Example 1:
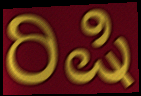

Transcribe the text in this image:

ರಿಷಿ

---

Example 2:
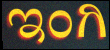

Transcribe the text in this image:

ಇಂಗಿ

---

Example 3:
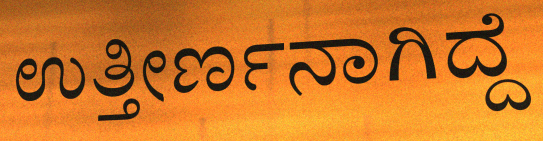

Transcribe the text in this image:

ಉತ್ತೀರ್ಣನಾಗಿದ್ದೆ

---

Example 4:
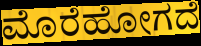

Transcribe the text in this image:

ಮೊರೆಹೋಗದೆ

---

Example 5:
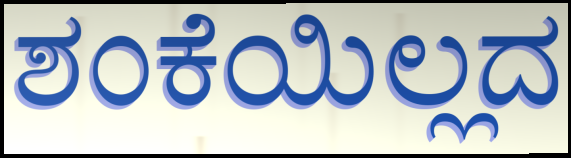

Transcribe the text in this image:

ಶಂಕೆಯಿಲ್ಲದ